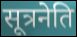
सूत्रनेति